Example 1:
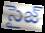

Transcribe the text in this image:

సైజ్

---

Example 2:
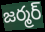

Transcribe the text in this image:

జర్మర్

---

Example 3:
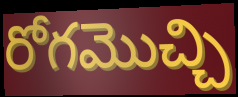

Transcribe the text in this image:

రోగమొచ్చి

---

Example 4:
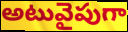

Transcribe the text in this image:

అటువైపుగా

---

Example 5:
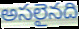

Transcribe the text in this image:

అసలైనది